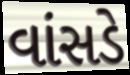
વાંસડે